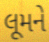
લૂમને